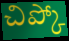
చిప్కో